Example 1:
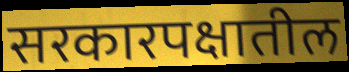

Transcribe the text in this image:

सरकारपक्षातील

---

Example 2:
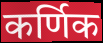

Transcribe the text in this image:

कर्णिक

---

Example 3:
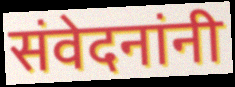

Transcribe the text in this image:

संवेदनांनी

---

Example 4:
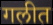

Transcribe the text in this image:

गलीत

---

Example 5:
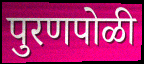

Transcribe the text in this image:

पुरणपोळी